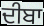
ਦੀਬਾ